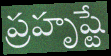
ప్రహృష్టే